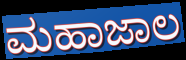
ಮಹಾಜಾಲ